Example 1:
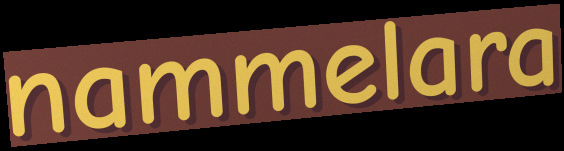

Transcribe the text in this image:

nammelara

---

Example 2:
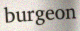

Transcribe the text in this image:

burgeon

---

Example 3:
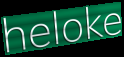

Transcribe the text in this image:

heloke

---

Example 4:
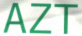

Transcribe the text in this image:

AZT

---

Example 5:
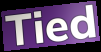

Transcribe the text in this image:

Tied